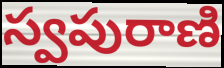
స్వపురాణి